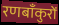
रणबाँकुरों